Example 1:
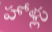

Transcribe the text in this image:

హోళ్లు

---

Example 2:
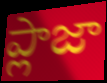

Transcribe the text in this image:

ప్లాజా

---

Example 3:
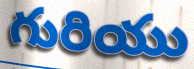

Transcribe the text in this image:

గురియు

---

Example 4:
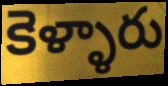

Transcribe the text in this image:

కెళ్ళారు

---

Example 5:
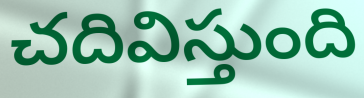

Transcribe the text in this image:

చదివిస్తుంది